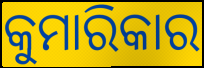
କୁମାରିକାର